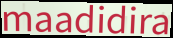
maadidira